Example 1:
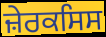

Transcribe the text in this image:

ਜ਼ੇਰਕਸਿਸ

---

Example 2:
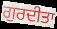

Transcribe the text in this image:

ਗੁਰਦੀਤਾ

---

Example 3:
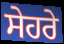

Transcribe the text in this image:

ਸੇਹਰੇ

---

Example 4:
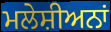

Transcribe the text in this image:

ਮਲੇਸ਼ੀਅਨਾਂ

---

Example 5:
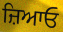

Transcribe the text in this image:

ਜ਼ਿਆਓ